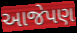
આજેપણ